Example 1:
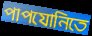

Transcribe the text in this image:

পাপযোনিতে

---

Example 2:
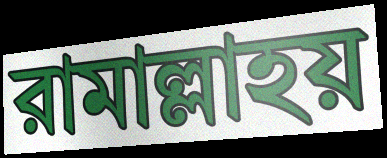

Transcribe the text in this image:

রামাল্লাহয়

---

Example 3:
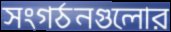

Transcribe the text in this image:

সংগঠনগুলোর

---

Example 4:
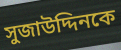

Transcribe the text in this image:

সুজাউদ্দিনকে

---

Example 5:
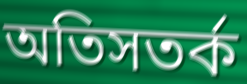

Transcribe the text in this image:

অতিসতর্ক